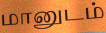
மானுடம்